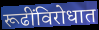
रूढींविरोधात